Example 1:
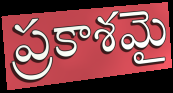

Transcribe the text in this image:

ప్రకాశమై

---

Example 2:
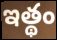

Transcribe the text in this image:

ఇత్థం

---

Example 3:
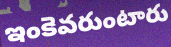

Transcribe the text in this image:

ఇంకెవరుంటారు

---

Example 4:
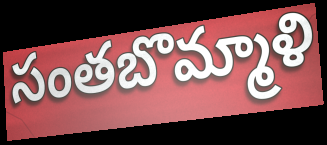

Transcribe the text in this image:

సంతబొమ్మాళి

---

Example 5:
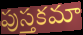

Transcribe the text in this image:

పుస్తకమా